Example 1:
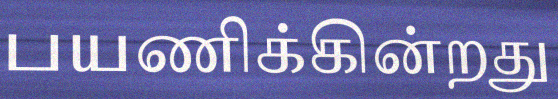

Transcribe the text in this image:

பயணிக்கின்றது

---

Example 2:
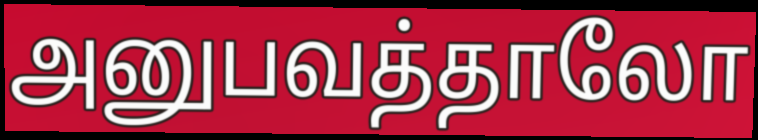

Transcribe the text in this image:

அனுபவத்தாலோ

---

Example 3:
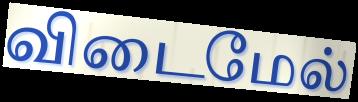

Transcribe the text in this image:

விடைமேல்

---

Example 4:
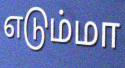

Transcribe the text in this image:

எடும்மா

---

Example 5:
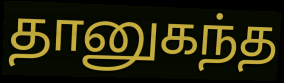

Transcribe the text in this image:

தானுகந்த